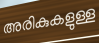
അരികുകളുള്ള